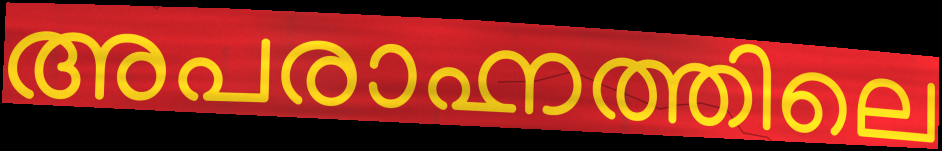
അപരാഹ്നത്തിലെ